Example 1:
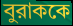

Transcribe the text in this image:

বুরাককে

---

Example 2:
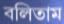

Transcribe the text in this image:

বলিতাম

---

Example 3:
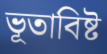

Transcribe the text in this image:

ভূতাবিষ্ট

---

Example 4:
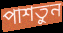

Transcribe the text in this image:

পাশতুন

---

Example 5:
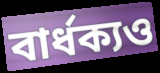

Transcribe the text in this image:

বার্ধক্যও